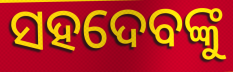
ସହଦେବଙ୍କୁ